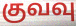
குவவு